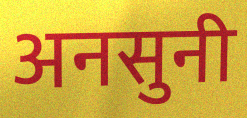
अनसुनी